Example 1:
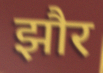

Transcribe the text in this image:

झौर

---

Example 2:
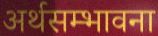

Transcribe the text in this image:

अर्थसम्भावना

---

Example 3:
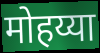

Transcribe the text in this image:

मोहय्या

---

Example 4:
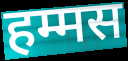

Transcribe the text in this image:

हम्मस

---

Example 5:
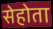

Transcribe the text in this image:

सेहोता